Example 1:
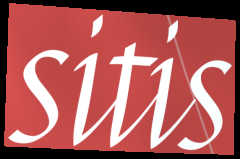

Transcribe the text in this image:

sitis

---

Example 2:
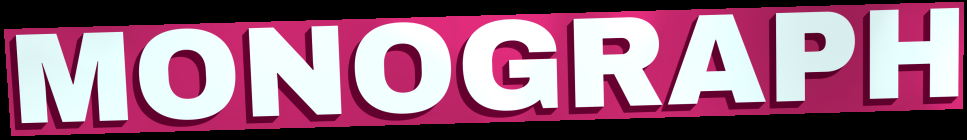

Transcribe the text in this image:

MONOGRAPH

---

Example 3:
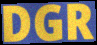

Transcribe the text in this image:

DGR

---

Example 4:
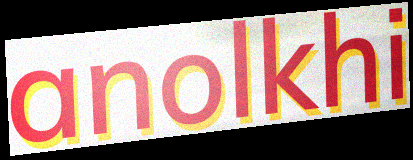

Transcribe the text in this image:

anolkhi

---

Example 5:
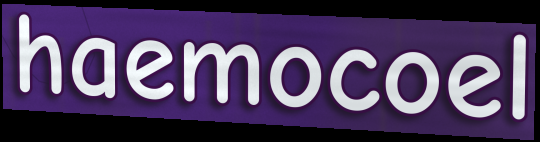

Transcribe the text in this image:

haemocoel